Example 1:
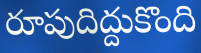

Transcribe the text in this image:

రూపుదిద్దుకొంది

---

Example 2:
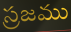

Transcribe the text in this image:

స్రజము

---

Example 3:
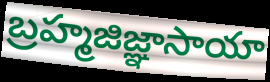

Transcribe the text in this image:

బ్రహ్మజిజ్ఞాసాయా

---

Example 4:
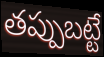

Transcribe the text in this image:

తప్పుబట్టే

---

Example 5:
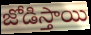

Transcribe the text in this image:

జోడిస్తాయి